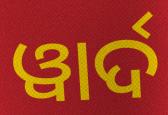
ୱାର୍ଦ